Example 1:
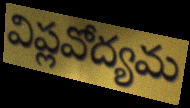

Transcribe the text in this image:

విప్లవోద్యమ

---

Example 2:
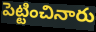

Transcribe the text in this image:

పెట్టించినారు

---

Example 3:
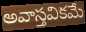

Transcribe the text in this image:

అవాస్తవికమే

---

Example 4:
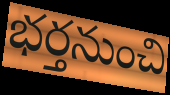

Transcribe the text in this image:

భర్తనుంచి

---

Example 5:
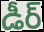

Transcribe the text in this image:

డీర్